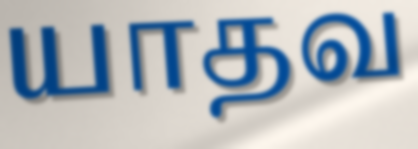
யாதவ